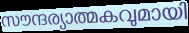
സൗന്ദര്യാത്മകവുമായി